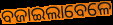
ବଜାଇଲାବେଳେ